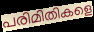
പരിമിതികളെ